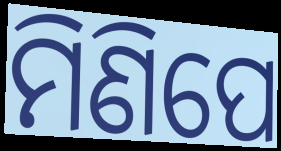
ମିଣିପେ